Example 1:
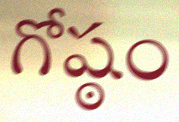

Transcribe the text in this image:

గోష్ఠం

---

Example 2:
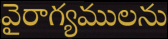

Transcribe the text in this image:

వైరాగ్యములను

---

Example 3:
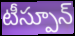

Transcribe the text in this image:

టీస్పూన్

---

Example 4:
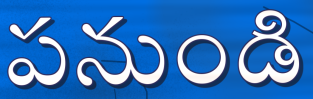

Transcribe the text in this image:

పనుండి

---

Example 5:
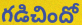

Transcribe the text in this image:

గడిచిందో